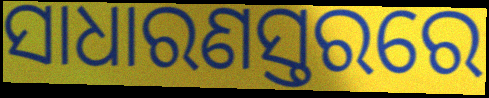
ସାଧାରଣସ୍ତରରେ